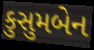
કુસુમબેન